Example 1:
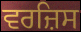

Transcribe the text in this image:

ਵਰਜ਼ਿਸ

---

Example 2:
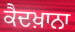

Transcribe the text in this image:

ਕੈਦਖ਼ਾਨਾ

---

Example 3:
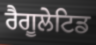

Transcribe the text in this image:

ਰੈਗੂਲੇਟਿਡ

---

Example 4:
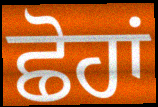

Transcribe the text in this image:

ਛੋਹਾਂ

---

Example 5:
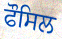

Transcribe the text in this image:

ਫੌਸਿਲ